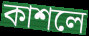
কাশলে